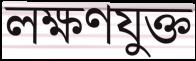
লক্ষণযুক্ত